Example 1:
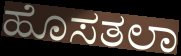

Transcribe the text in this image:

ಹೊಸತಲಾ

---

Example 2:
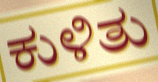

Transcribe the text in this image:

ಕುಳಿತು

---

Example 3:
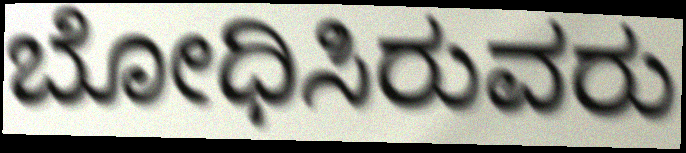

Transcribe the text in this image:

ಬೋಧಿಸಿರುವರು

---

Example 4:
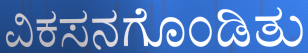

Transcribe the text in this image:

ವಿಕಸನಗೊಂಡಿತು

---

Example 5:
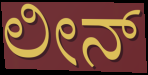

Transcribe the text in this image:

ಲೀನ್